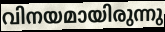
വിനയമായിരുന്നു